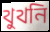
থুথনি